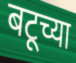
बटूच्या